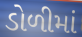
ડોળીમાં